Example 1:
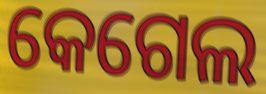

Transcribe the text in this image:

କେଗେଲ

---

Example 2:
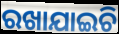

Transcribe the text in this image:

ରଖାଯାଇଚି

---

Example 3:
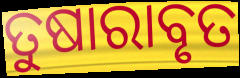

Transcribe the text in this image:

ତୁଷାରାବୃତ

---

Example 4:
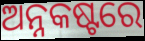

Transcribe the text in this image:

ଅନ୍ନକଷ୍ଟରେ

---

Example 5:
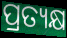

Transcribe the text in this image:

ପ୍ରତ୍ଯକ୍ଷ